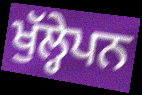
ਖੁੱਲ੍ਹੇਪਨ